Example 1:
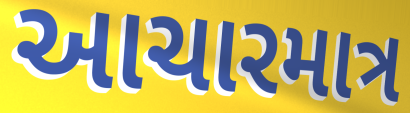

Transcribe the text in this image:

આચારમાત્ર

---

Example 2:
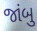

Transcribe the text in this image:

જાંબુ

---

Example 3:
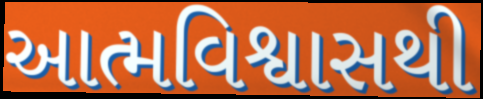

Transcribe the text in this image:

આત્મવિશ્વાસથી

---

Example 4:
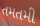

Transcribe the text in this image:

તમતમી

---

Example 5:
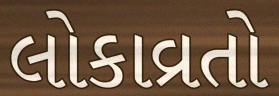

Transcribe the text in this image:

લોકાવ્રતો